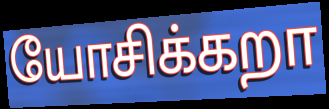
யோசிக்கறா